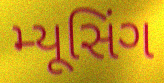
મ્યૂસિંગ